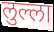
लुल्ला